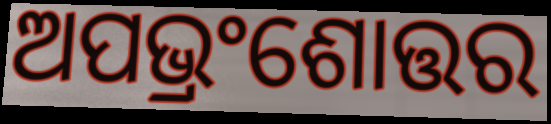
ଅପଭ୍ରଂଶୋତ୍ତର